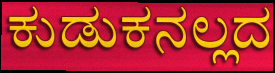
ಕುಡುಕನಲ್ಲದ